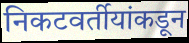
निकटवर्तीयांकडून